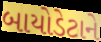
બાયોડેટાને